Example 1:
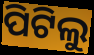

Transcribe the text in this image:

ପିଟିଲୁ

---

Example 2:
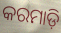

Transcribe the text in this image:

କରମାଡ଼ି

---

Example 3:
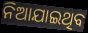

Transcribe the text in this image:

ନିଆଯାଇଥିବ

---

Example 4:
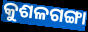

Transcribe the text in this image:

କୁଶଳଗଙ୍ଗା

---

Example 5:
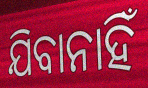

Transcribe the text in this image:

ଯିବାନାହିଁ